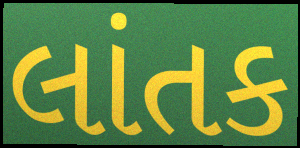
લાંતક